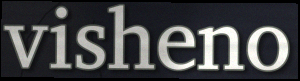
visheno